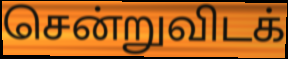
சென்றுவிடக்